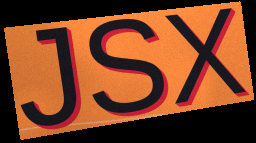
JSX